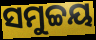
ସମୁଚ୍ଚୟ